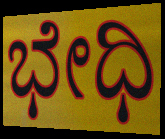
ಭೇಧಿ